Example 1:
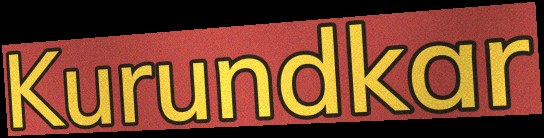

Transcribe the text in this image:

Kurundkar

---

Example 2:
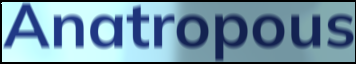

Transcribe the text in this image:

Anatropous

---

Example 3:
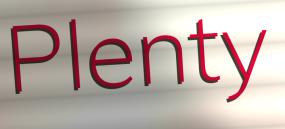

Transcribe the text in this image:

Plenty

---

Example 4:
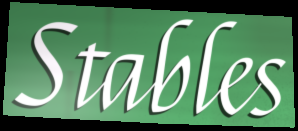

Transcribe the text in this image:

Stables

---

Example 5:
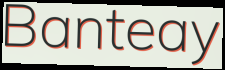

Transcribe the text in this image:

Banteay